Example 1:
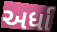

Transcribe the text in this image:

અર્ધા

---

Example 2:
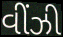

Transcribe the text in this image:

વીંઝી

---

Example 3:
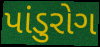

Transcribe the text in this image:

પાંડુરોગ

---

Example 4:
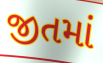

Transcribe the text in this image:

જીતમાં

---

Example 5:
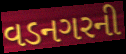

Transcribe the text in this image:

વડનગરની